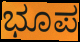
ಭೂಪ